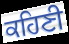
ਕਹਿਣੀ